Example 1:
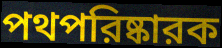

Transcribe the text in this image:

পথপরিষ্কারক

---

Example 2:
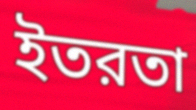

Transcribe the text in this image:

ইতরতা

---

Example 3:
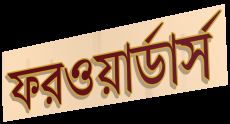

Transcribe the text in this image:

ফরওয়ার্ডার্স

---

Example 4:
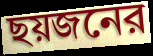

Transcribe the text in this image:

ছয়জনের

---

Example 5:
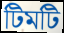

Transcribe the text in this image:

টিমটি